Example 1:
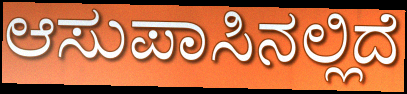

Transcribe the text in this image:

ಆಸುಪಾಸಿನಲ್ಲಿದೆ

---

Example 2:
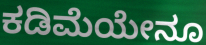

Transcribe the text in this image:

ಕಡಿಮೆಯೇನೂ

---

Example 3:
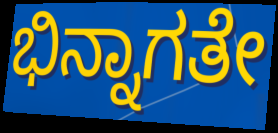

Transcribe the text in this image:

ಭಿನ್ನಾಗತೇ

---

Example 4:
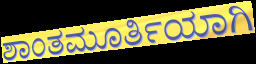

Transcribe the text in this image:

ಶಾಂತಮೂರ್ತಿಯಾಗಿ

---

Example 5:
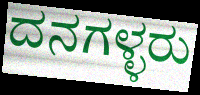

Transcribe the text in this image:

ದನಗಳ್ಳರು